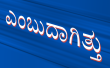
ಎಂಬುದಾಗಿತ್ತು